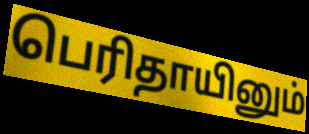
பெரிதாயினும்